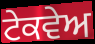
ਟੇਕਵੇਅ